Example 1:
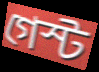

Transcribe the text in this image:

গেস্ট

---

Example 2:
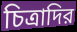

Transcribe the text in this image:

চিত্রাদির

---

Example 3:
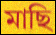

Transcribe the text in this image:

মাছি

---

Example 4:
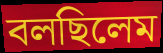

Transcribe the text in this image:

বলছিলেম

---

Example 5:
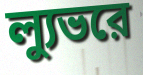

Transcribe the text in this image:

ল্যুভরে